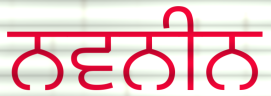
ਨਵਨੀਨ